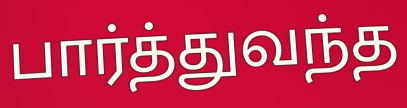
பார்த்துவந்த